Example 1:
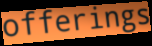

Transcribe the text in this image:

offerings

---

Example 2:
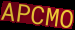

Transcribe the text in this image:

APCMO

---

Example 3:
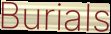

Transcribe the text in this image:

Burials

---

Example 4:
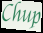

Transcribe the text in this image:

Chup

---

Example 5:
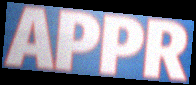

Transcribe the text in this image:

APPR